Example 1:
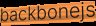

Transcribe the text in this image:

backbonejs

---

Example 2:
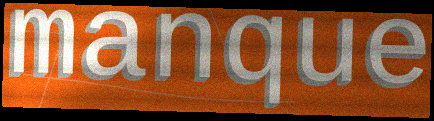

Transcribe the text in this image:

manque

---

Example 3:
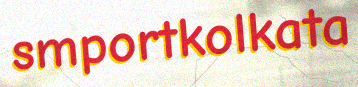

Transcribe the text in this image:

smportkolkata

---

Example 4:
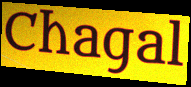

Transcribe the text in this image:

Chagal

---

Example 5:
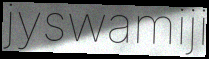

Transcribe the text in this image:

jyswamiji